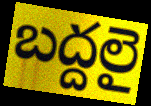
బద్దలై